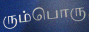
ரும்பொரு